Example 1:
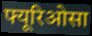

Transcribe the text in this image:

फ्यूरिओसा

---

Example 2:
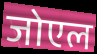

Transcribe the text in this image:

जोएल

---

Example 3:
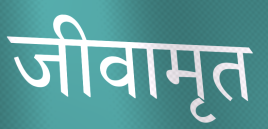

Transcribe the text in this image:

जीवामृत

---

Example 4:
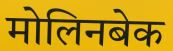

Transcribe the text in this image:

मोलिनबेक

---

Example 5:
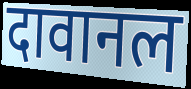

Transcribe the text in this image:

दावानल